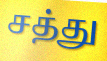
சத்து